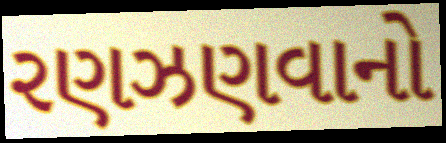
રણઝણવાનો